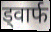
ड्वार्फ